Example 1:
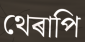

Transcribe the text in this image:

থেৰাপি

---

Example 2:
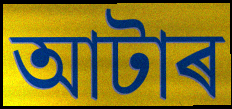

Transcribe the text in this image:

আটাৰ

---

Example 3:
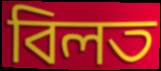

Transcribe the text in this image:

বিলত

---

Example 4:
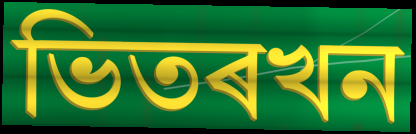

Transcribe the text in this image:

ভিতৰখন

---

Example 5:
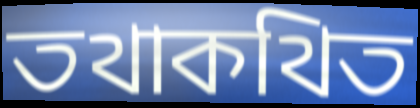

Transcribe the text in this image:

তথাকথিত